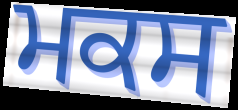
ਮਕਸ